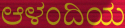
ಆಳಂದಿಯ